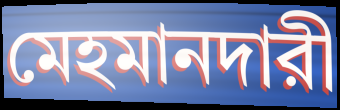
মেহমানদারী